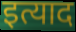
इत्याद